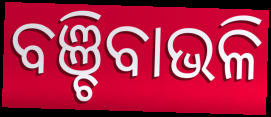
ବଞ୍ଚିବାଭଳି